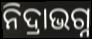
ନିଦ୍ରାଭଗ୍ନ